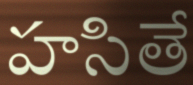
హసితే